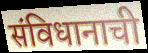
संविधानाची